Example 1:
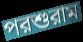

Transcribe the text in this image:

পরশুরাম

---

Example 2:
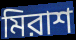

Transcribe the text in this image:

মিরাশ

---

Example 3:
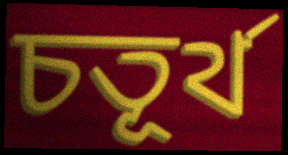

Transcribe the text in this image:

চতূর্থ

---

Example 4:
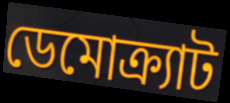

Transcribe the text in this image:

ডেমোক্র্যাট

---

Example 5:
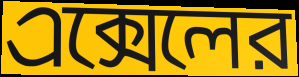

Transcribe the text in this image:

এক্সেলের